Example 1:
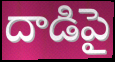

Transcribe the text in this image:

దాడిపై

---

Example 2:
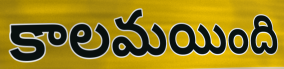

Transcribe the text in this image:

కాలమయింది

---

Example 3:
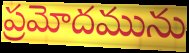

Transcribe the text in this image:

ప్రమోదమును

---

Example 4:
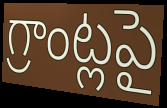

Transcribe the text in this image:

గ్రాంట్లపై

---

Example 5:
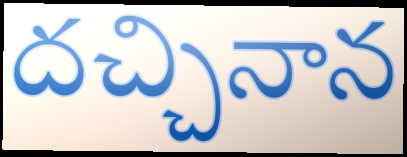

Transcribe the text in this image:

దచ్చినాన